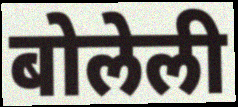
बोलेली